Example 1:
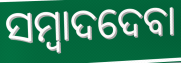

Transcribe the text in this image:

ସମ୍ବାଦଦେବା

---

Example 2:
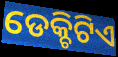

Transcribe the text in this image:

ଡେକ୍ଚିଟିଏ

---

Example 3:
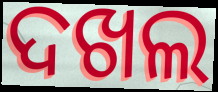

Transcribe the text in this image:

ଦଖଲ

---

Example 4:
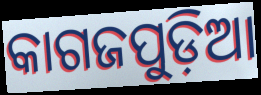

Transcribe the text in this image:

କାଗଜପୁଡ଼ିଆ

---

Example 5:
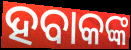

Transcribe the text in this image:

ହବାକଙ୍କ